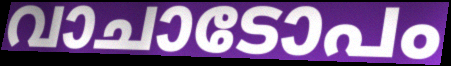
വാചാടോപം